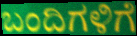
ಬಂದಿಗಳಿಗೆ